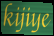
kijiye